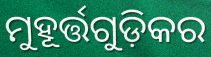
ମୁହୂର୍ତ୍ତଗୁଡ଼ିକର